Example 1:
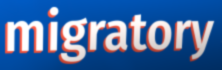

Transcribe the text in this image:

migratory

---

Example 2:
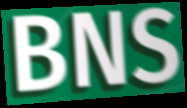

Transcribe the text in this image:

BNS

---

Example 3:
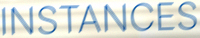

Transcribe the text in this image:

INSTANCES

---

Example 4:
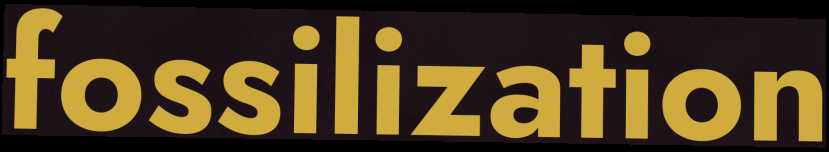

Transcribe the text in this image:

fossilization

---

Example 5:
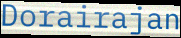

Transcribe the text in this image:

Dorairajan